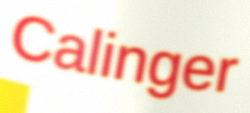
Calinger